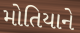
મોતિયાને